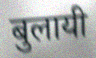
बुलायी